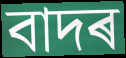
বাদৰ